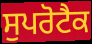
ਸੁਪਰੋਟੈਕ